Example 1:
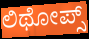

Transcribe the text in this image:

ಲಿಥೋಪ್ಸ್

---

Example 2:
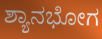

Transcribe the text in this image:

ಶ್ಯಾನಭೋಗ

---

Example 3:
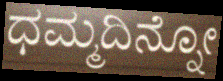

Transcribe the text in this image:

ಧಮ್ಮದಿನ್ನೋ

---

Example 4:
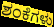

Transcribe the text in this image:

ಶಂಕೆಗಳು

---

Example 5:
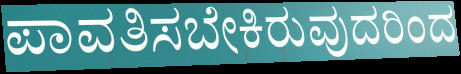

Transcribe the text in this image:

ಪಾವತಿಸಬೇಕಿರುವುದರಿಂದ